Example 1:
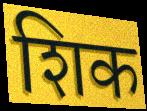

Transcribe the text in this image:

शिक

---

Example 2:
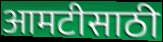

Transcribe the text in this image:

आमटीसाठी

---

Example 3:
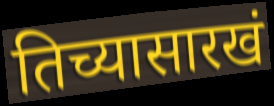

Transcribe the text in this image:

तिच्यासारखं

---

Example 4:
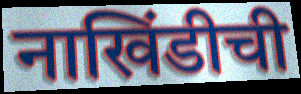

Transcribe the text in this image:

नाखिंडीची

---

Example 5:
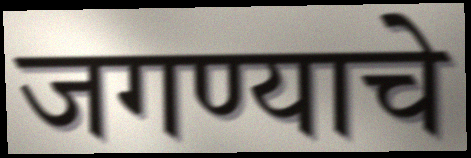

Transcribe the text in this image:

जगण्याचे